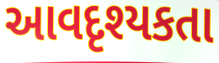
આવદૃશ્યકતા